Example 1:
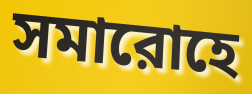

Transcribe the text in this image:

সমারোহে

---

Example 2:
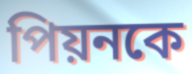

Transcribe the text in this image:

পিয়নকে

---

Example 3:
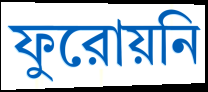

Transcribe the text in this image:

ফুরোয়নি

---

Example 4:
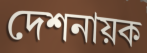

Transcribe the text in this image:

দেশনায়ক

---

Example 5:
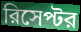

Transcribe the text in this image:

রিসেপ্টর